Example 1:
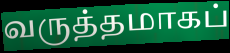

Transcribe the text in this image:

வருத்தமாகப்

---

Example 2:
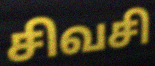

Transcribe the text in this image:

சிவசி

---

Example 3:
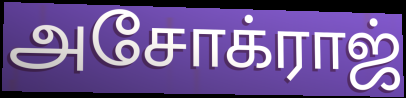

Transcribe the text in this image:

அசோக்ராஜ்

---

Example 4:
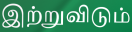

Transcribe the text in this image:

இற்றுவிடும்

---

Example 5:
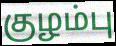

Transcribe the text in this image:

குழம்பு